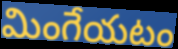
మింగేయటం